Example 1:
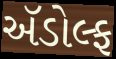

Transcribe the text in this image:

ઍડોલ્ફ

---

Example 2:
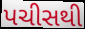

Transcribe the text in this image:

પચીસથી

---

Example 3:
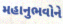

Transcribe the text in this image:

મહાનુભવોને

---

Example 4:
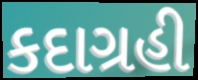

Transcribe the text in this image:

કદાગ્રહી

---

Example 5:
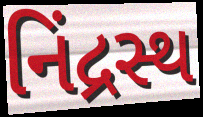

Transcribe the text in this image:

નિંદ્રસ્થ